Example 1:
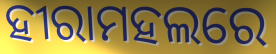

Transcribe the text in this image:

ହୀରାମହଲରେ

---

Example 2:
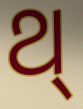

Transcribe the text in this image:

ଥ୍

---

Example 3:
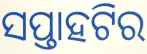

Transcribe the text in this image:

ସପ୍ତାହଟିର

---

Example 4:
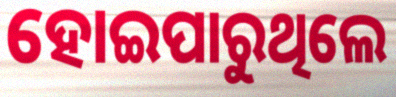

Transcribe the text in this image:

ହୋଇପାରୁଥିଲେ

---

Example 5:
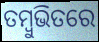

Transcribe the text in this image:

ତମ୍ବୁଭିତରେ